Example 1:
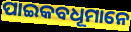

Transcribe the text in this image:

ପାଇକବଧୂମାନେ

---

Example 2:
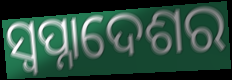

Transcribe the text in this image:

ସ୍ଵପ୍ନାଦେଶର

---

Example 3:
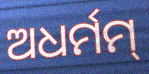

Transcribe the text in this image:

ଅଧର୍ମମ୍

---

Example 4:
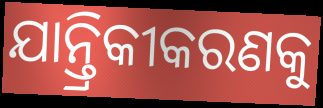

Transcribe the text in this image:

ଯାନ୍ତ୍ରିକୀକରଣକୁ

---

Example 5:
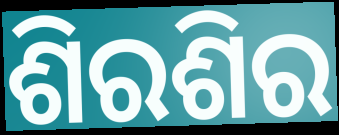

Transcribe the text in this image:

ଶିରଶିର